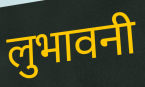
लुभावनी